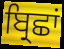
ਬ੍ਰਿਛਾਂ